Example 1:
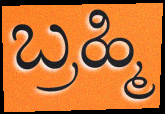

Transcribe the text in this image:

ಬ್ರಹ್ಮಿ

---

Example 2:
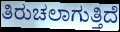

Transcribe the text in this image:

ತಿರುಚಲಾಗುತ್ತಿದೆ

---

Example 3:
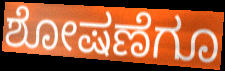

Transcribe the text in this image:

ಶೋಷಣೆಗೂ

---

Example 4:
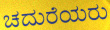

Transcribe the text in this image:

ಚದುರೆಯರು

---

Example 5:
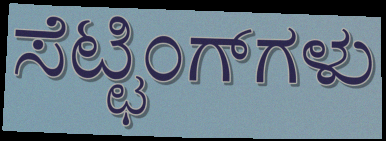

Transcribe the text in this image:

ಸೆಟ್ಟಿಂಗ್‌ಗಳು